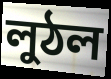
লুঠল